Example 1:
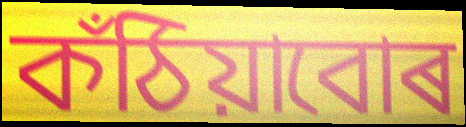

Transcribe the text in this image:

কঁঠিয়াবোৰ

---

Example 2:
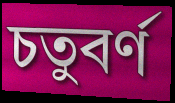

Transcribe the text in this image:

চতুবৰ্ণ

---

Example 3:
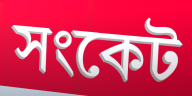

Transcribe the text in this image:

সংকেট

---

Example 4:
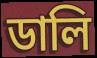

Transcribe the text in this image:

ডালি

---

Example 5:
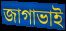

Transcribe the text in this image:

জাগাভাই